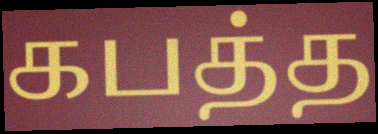
கபத்த